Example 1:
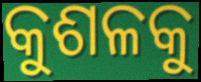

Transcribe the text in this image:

କୁଶଳକୁ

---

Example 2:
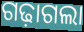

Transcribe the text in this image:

ଗଢ଼ାଗଲା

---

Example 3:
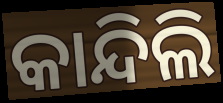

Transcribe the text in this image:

କାନ୍ଦିଲି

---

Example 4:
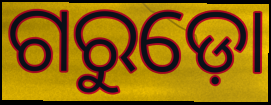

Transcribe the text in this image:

ଗରୁଡ଼ୋ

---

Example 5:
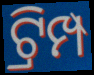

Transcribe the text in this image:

ଟ୍ରିମ୍ପ